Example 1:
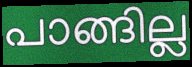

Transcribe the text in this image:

പാങ്ങില്ല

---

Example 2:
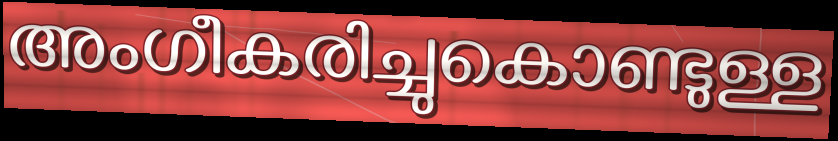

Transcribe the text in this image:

അംഗീകരിച്ചുകൊണ്ടുള്ള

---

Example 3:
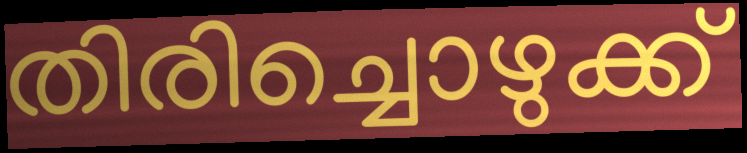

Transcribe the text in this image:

തിരിച്ചൊഴുക്ക്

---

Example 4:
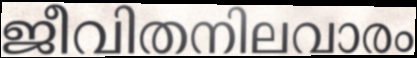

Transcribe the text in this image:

ജീവിതനിലവാരം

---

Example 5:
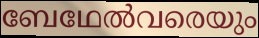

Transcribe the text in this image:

ബേഥേൽവരെയും